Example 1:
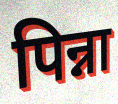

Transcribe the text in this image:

पिन्ना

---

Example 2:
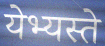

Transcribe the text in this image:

येभ्यस्ते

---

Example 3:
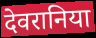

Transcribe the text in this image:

देवरानिया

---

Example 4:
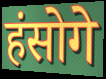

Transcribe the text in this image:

हंसोगे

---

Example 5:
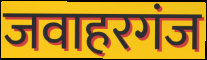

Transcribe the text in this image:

जवाहरगंज